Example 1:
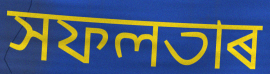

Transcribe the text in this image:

সফলতাৰ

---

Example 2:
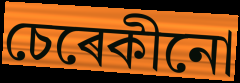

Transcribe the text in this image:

চেৰেকীনো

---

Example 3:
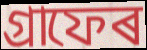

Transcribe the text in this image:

গ্ৰাফেৰ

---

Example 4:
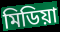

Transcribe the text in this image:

মিডিয়া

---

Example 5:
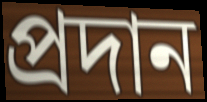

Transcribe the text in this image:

প্ৰদান